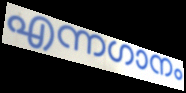
എന്നഗാനം